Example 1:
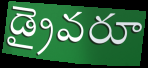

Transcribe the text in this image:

డ్రైవరూ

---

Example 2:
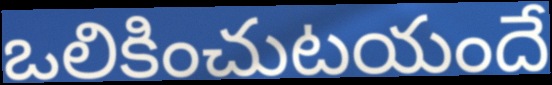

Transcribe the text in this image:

ఒలికించుటయందే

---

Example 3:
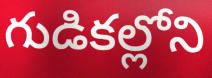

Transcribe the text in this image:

గుడికల్లోని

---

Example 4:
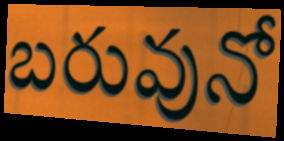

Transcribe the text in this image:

బరువునో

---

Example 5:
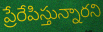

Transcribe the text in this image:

ప్రేరేపిస్తున్నారని